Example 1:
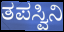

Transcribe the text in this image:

ತಪಸ್ವಿನಿ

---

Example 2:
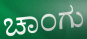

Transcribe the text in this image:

ಚಾಂಗು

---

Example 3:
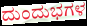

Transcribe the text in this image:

ದುಂದುಭಗಳ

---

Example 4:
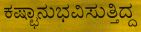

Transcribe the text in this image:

ಕಷ್ಟಾನುಭವಿಸುತ್ತಿದ್ದ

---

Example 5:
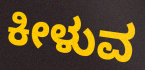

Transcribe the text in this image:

ಕೀಳುವ